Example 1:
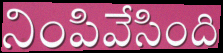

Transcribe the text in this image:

నింపివేసింది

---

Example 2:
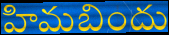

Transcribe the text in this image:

హిమబిందు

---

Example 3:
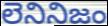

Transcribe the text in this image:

లెనినిజం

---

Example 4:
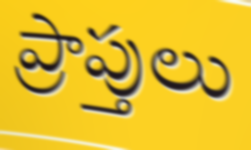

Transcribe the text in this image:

ప్రాప్తులు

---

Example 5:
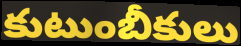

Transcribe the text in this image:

కుటుంబీకులు